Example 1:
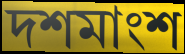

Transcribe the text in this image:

দশমাংশ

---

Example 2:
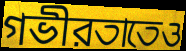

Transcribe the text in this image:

গভীরতাতেও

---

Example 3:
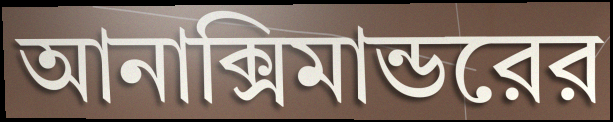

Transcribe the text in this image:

আনাক্সিমান্ডরের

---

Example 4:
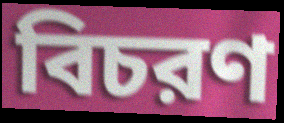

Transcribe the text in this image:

বিচরণ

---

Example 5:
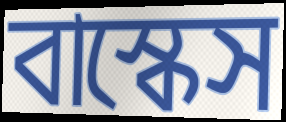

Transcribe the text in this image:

বাস্কেস